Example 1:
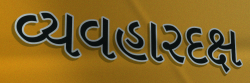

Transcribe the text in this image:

વ્યવહારદક્ષ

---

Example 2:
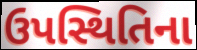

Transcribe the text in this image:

ઉપસ્થિતિના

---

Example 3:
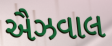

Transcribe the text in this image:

ઐઝવાલ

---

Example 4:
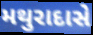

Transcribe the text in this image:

મથુરાદાસે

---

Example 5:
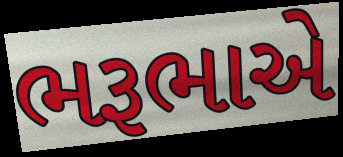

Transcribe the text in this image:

ભરૂભાએ